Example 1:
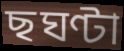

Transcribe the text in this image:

ছঘণ্টা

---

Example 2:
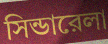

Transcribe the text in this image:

সিন্ডারেলা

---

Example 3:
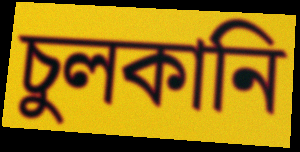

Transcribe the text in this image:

চুলকানি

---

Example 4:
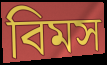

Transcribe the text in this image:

বিমস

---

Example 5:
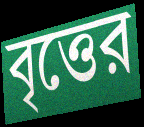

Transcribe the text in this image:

বৃত্তের